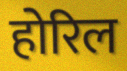
होरिल